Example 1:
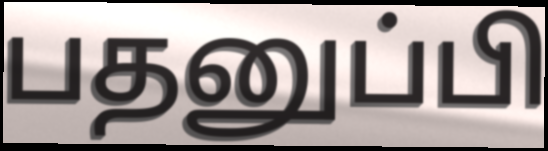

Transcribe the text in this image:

பதனுப்பி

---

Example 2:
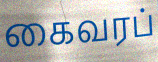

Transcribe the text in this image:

கைவரப்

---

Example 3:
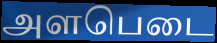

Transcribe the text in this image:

அளபெடை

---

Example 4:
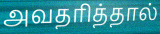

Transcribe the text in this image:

அவதரித்தால்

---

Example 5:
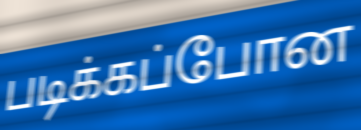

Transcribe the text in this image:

படிக்கப்போன